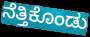
ನೆತ್ತಿಕೊಂಡು